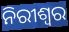
ନିରୀଶ୍ୱର